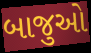
બાજુઓ